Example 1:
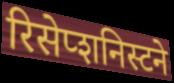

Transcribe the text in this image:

रिसेप्शनिस्टने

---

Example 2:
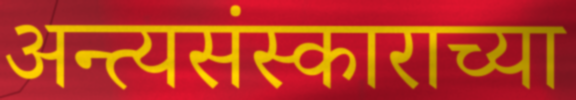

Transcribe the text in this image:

अन्त्यसंस्काराच्या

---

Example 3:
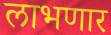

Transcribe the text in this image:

लाभणार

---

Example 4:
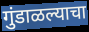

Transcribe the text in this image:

गुंडाळल्याचा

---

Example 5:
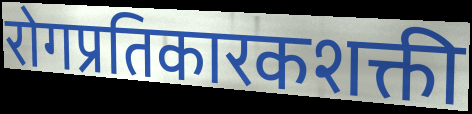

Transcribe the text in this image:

रोगप्रतिकारकशक्ती